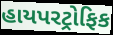
હાયપરટ્રોફિક